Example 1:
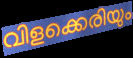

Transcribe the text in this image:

വിളക്കെരിയും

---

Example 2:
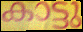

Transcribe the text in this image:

കാട്ടു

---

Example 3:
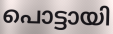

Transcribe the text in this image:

പൊട്ടായി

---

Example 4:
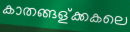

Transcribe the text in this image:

കാതങ്ങള്ക്കകലെ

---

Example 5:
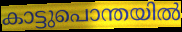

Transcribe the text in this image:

കാട്ടുപൊന്തയിൽ